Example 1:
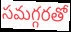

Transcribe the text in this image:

సమగ్గరతో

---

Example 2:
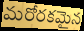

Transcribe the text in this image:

మరోరకమైన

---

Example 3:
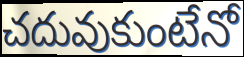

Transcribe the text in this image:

చదువుకుంటేనో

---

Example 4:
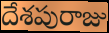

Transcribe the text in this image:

దేశపురాజు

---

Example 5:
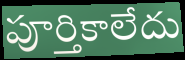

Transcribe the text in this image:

పూర్తికాలేదు